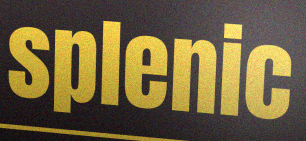
splenic